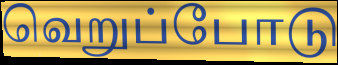
வெறுப்போடு